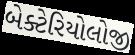
બેક્ટેરિયોલોજી